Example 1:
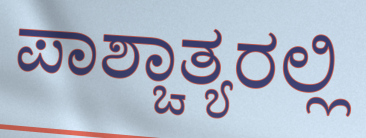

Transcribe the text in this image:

ಪಾಶ್ಚಾತ್ಯರಲ್ಲಿ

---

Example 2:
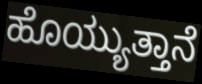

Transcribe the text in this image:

ಹೊಯ್ಯುತ್ತಾನೆ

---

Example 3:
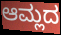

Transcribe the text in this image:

ಆಮ್ಲದ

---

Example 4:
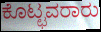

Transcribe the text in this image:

ಕೊಟ್ಟವರಾರು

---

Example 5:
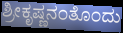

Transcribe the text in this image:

ಶ್ರೀಕೃಷ್ಣನಂತೊಂದು